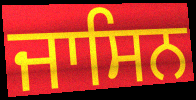
ਜਾਸਿਨ